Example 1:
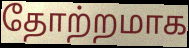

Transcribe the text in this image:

தோற்றமாக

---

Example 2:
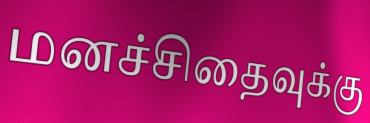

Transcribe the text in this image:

மனச்சிதைவுக்கு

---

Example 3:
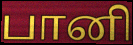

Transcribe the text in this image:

பானி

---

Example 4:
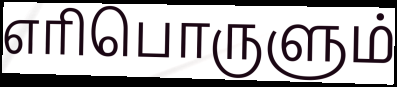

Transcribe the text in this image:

எரிபொருளும்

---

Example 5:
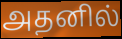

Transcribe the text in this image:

அதனில்